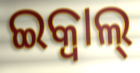
ଇକ୍ୱାଲ୍